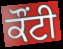
ਕੌਂਟੀ